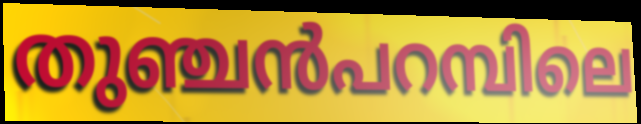
തുഞ്ചൻപറമ്പിലെ